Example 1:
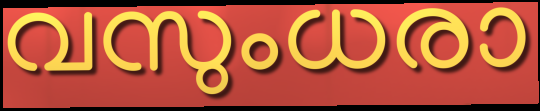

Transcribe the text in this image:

വസുംധരാ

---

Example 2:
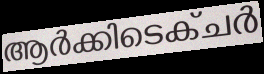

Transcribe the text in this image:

ആർക്കിടെക്ചർ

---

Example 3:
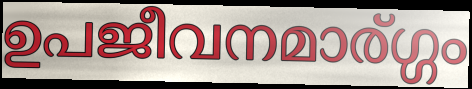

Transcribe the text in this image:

ഉപജീവനമാര്ഗ്ഗം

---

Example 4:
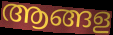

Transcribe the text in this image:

ആങ്ങള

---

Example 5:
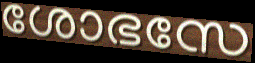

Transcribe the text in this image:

ശോഭസേ